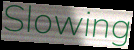
Slowing